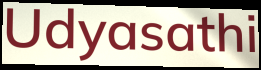
Udyasathi